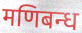
मणिबन्ध